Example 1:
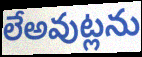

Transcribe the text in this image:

లేఅవుట్లను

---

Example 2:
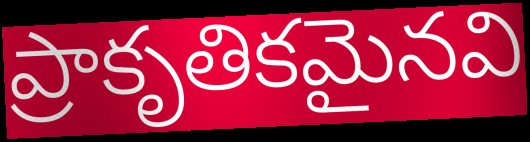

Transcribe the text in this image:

ప్రాకృతికమైనవి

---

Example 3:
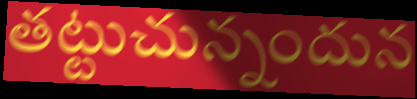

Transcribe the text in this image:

తట్టుచున్నందున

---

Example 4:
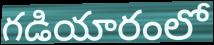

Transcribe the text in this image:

గడియారంలో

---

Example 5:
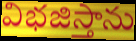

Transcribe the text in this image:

విభజిస్తాను